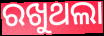
ରଖୁଥଲା